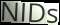
NIDs